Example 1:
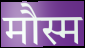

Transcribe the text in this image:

मौस्म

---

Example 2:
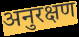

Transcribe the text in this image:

अनुरक्षण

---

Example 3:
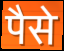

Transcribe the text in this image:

पैसे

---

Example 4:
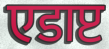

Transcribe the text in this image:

एडाप्ट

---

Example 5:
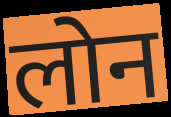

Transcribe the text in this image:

लोन